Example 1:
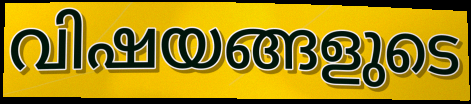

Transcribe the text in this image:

വിഷയങ്ങളുടെ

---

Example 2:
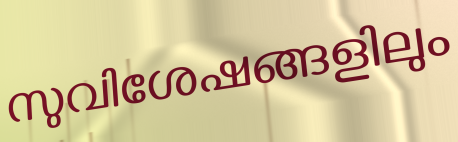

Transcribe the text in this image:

സുവിശേഷങ്ങളിലും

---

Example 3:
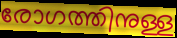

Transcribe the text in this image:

രോഗത്തിനുള്ള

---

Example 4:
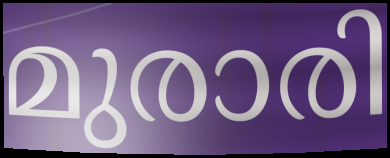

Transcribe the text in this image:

മുരാരി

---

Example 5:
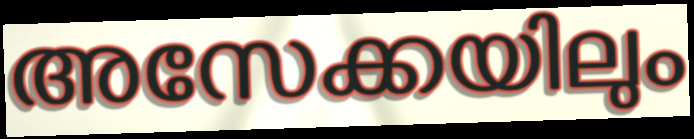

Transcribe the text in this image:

അസേക്കയിലും